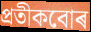
প্ৰতীকবোৰ